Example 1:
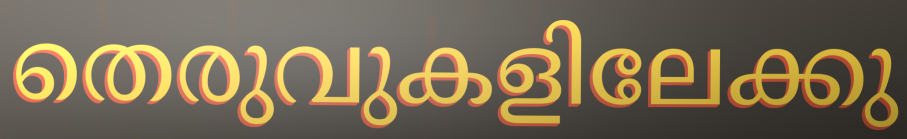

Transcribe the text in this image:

തെരുവുകളിലേക്കു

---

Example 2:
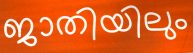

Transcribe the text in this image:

ജാതിയിലും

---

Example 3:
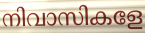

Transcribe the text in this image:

നിവാസികളേ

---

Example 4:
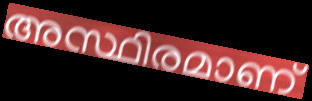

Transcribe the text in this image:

അസ്ഥിരമാണ്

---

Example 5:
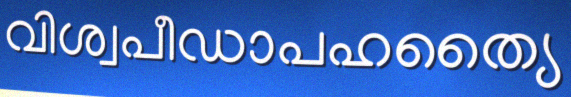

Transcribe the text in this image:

വിശ്വപീഡാപഹത്യൈ